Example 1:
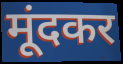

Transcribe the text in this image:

मूंदकर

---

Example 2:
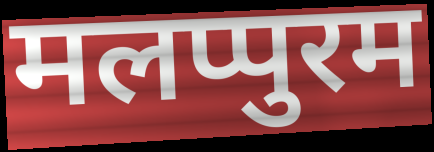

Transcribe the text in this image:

मलप्पुरम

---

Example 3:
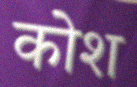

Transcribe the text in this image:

कोश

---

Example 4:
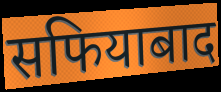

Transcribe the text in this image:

सफियाबाद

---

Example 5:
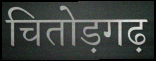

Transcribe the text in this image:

चितोड़गढ़